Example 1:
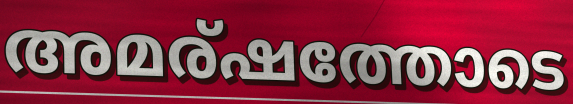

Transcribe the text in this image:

അമര്ഷത്തോടെ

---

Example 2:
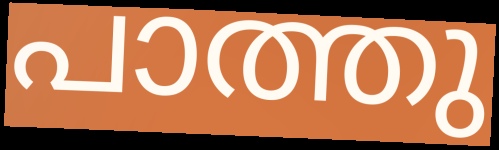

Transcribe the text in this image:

പാത്തു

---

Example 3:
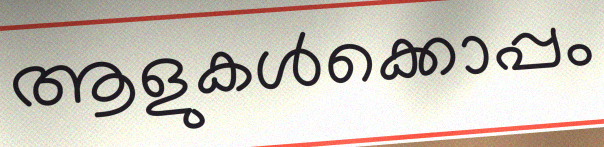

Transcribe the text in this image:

ആളുകൾക്കൊപ്പം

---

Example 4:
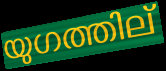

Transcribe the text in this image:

യുഗത്തില്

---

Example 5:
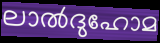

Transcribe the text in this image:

ലാൽദുഹോമ